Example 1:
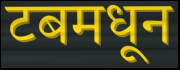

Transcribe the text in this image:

टबमधून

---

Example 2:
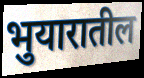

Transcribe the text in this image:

भुयारातील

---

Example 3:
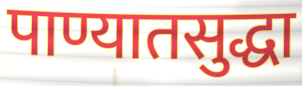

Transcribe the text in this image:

पाण्यातसुद्धा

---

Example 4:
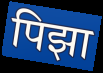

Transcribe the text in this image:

पिझा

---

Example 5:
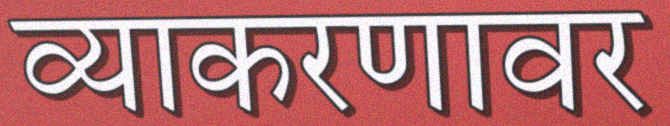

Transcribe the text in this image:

व्याकरणावर